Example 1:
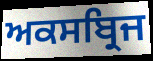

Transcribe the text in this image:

ਅਕਸਬ੍ਰਿਜ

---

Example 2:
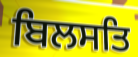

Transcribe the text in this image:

ਬਿਲਸਤਿ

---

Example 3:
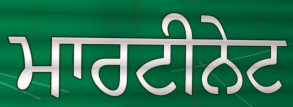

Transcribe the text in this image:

ਮਾਰਟੀਨੇਟ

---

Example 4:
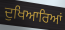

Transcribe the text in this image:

ਦੁਖਿਆਰਿਆਂ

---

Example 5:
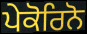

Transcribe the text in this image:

ਪੇਕੋਰਿਨੋ